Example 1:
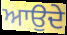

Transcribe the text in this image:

ਆਉਦੇ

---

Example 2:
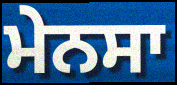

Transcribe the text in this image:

ਮੇਨਸਾ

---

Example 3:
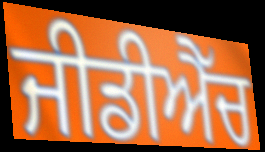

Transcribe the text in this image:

ਜੀਡੀਐੱਚ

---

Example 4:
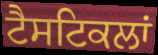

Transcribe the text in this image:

ਟੈਸਟਿਕਲਾਂ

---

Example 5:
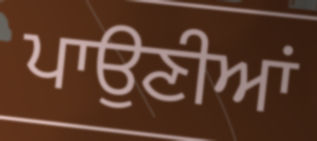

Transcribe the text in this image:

ਪਾਉਣੀਆਂ